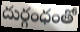
దుర్గంధంతో